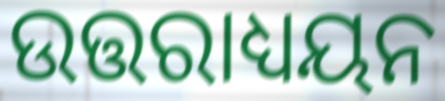
ଉତ୍ତରାଧ୍ୟୟନ